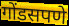
गोंडसपणे